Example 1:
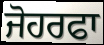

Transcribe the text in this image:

ਜੋਹਰਫਾ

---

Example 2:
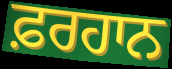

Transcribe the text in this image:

ਫ਼ਰਹਾਨ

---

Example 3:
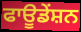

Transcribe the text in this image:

ਫਾਊਡੇਂਸ਼ਨ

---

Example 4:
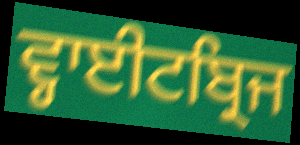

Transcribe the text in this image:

ਵ੍ਹਾਈਟਬ੍ਰਿਜ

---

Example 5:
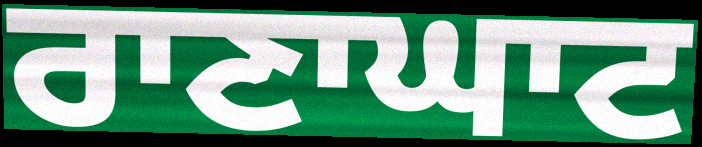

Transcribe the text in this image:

ਰਾਣਾਘਾਟ